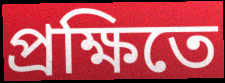
প্রক্ষিতে